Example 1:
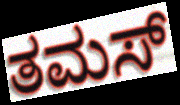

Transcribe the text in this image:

ತಮಸ್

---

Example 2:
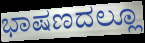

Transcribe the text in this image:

ಭಾಷಣದಲ್ಲೂ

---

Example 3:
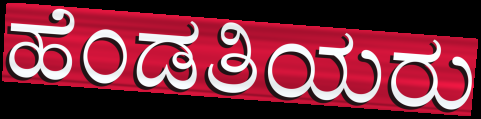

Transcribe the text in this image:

ಹೆಂಡತಿಯರು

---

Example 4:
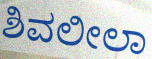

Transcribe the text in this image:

ಶಿವಲೀಲಾ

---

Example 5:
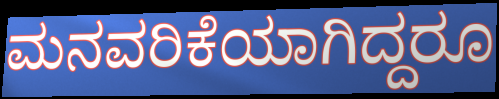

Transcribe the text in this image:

ಮನವರಿಕೆಯಾಗಿದ್ದರೂ